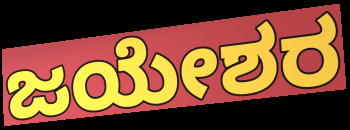
ಜಯೇಶರ